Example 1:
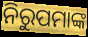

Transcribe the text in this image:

ନିରୁପମାଙ୍କ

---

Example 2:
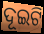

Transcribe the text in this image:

ଦୂଇଟି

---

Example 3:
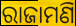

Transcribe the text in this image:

ରାଜାମଣି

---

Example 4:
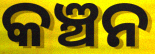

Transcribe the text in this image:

କଞ୍ଚନ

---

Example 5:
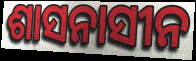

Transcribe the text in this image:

ଶାସନାସୀନ